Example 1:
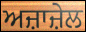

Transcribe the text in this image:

ਅਜ਼ਾਜ਼ੇਲ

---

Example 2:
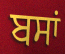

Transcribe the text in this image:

ਬਸਾਂ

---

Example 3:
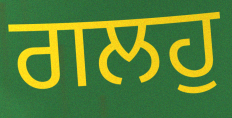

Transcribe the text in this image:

ਗਲਹੁ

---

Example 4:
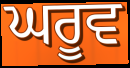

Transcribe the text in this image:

ਘਰੂਵ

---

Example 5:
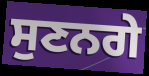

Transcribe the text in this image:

ਸੁਣਨਗੇ